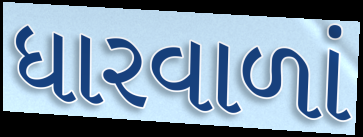
ધારવાળાં